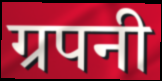
ग्रपनी